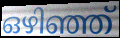
ഒഴിഞ്ഞ്